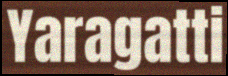
Yaragatti